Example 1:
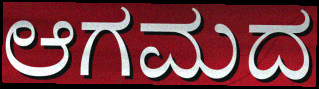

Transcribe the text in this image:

ಆಗಮದ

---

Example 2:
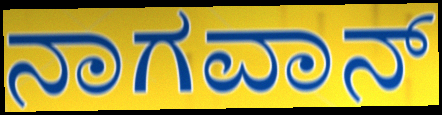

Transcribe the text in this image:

ನಾಗವಾನ್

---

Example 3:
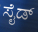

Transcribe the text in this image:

ಸೈಡ್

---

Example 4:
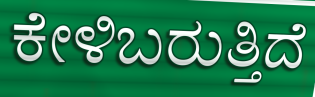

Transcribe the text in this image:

ಕೇಳಿಬರುತ್ತಿದೆ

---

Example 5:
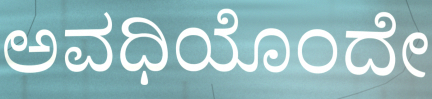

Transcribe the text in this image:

ಅವಧಿಯೊಂದೇ